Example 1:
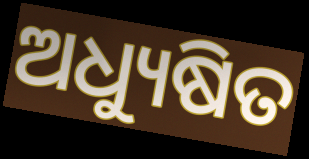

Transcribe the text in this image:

ଅଧ୍ୟୁଷିତ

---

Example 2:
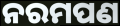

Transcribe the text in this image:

ନରମପଣ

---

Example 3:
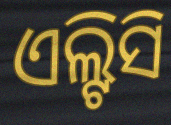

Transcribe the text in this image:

ଏଲ୍ଟିସି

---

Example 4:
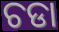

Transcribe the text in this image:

ଚଡା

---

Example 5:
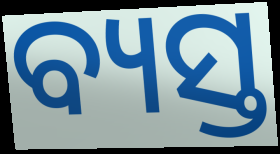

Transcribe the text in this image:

ବ୍ୟସ୍ତ